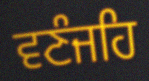
ਵਣੰਜਹਿ